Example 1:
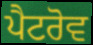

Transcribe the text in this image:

ਪੈਟਰੋਵ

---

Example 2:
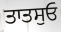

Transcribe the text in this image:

ਤਾਤਸੁਓ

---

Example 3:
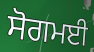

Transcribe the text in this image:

ਸੋਗਮਈ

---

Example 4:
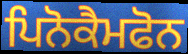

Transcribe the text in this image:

ਪਿਨੋਕੈਮਫੋਨ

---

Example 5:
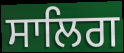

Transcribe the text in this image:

ਸਾਲਿਗ